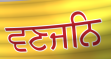
ਵਣਜਨਿ